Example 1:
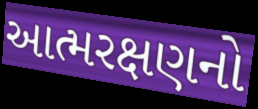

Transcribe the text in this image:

આત્મરક્ષણનો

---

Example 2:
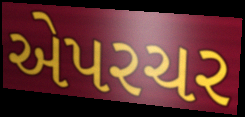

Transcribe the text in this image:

એપરચર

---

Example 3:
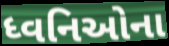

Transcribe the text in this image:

ધ્વનિઓના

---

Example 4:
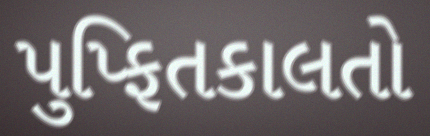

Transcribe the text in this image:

પુપ્ફિતકાલતો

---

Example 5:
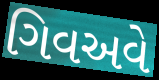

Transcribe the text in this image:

ગિવઅવે